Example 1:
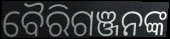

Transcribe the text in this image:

ବୈରିଗଞ୍ଜନଙ୍କ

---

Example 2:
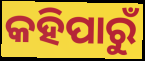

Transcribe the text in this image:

କହିପାରୁଁ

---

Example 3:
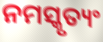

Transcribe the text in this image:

ନମସ୍କୃତ୍ୟଂ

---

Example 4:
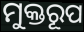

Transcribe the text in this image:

ମୁକ୍ତରୂପ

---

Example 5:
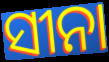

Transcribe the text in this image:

ସୀନା